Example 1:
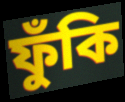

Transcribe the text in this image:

ফুঁকি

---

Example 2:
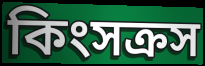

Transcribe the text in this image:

কিংসক্রস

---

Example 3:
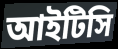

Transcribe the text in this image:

আইটিসি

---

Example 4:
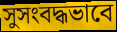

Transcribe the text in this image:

সুসংবদ্ধভাবে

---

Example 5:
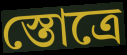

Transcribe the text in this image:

স্তোত্রে